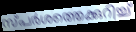
സ്പർശത്തെക്കുറിച്ച്